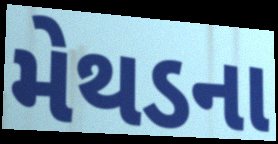
મેથડના